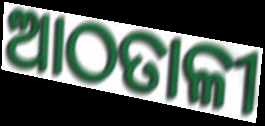
ଆଠତାଳୀ